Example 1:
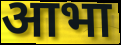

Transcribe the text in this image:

आभा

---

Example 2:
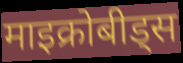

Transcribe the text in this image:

माइक्रोबीड्स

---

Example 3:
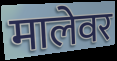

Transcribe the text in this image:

मालेवर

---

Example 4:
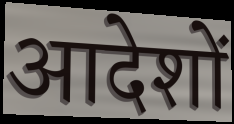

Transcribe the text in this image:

आदेशों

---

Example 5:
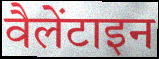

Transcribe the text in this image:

वैलेंटाइन